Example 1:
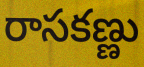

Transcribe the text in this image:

రాసకణ్ణు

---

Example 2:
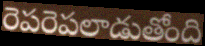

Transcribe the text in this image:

రెపరెపలాడుతోంది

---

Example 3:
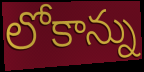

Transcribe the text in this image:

లోకాన్ను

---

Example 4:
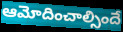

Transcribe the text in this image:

ఆమోదించాల్సిందే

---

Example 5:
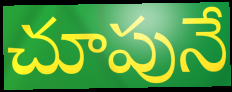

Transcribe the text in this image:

చూపునే